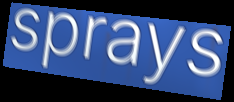
sprays